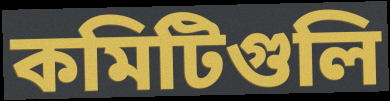
কমিটিগুলি